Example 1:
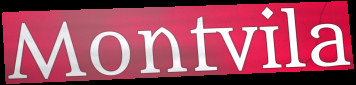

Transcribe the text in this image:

Montvila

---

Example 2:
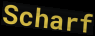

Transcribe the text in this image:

Scharf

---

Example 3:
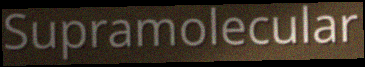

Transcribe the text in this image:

Supramolecular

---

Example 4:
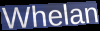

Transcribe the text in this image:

Whelan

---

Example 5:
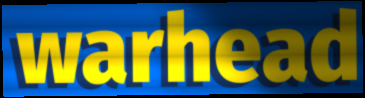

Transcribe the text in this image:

warhead